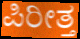
ಪಿರೀತ್ತ